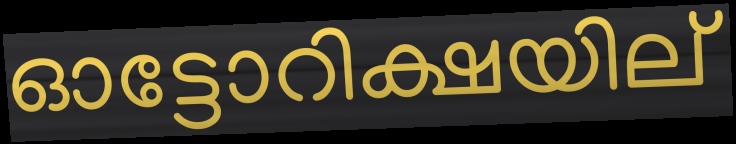
ഓട്ടോറിക്ഷയില്